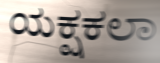
ಯಕ್ಷಕಲಾ